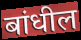
बांधील